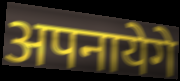
अपनायेगे